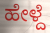
ಹೇಳ್ದೆ